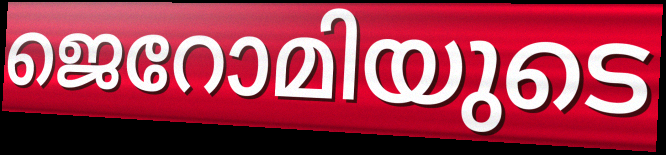
ജെറോമിയുടെ